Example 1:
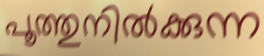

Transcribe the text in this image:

പൂത്തുനിൽക്കുന്ന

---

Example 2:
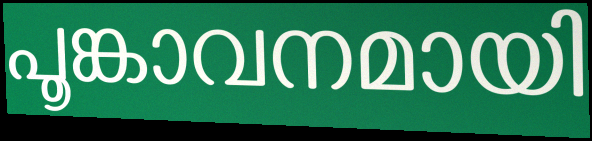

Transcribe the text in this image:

പൂങ്കാവനമായി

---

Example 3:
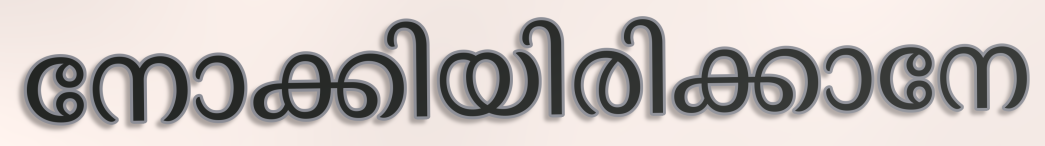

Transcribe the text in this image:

നോക്കിയിരിക്കാനേ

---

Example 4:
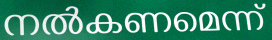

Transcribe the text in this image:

നൽകണമെന്ന്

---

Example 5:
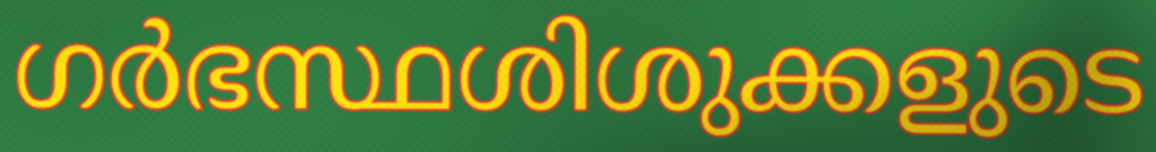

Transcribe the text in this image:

ഗർഭസ്ഥശിശുക്കളുടെ